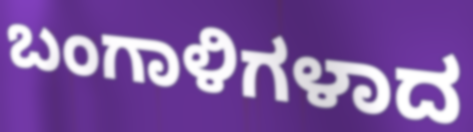
ಬಂಗಾಳಿಗಳಾದ